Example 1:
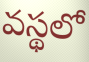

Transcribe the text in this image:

వస్థలో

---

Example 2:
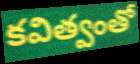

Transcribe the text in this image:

కవిత్వంతో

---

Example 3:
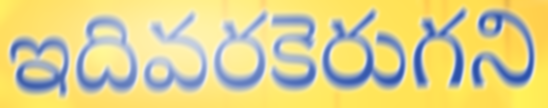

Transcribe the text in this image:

ఇదివరకెరుగని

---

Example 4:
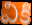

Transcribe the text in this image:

వికి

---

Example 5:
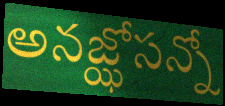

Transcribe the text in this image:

అనజ్ఝోసన్నో